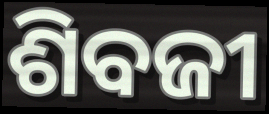
ଶିବଜୀ